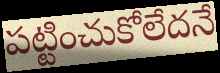
పట్టించుకోలేదనే